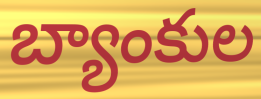
బ్యాంకుల